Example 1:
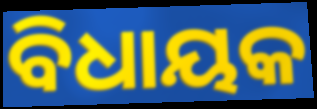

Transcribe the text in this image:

ବିଧାୟକ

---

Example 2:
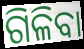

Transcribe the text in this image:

ଗିଳିବା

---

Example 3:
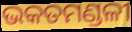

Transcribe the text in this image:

ଭକତମଣ୍ଡଳୀ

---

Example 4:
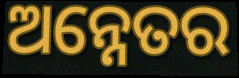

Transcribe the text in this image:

ଅନ୍ନେତର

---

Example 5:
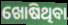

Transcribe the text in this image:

ଖୋଷିଥିବା